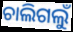
ଚାଲିଗଲୁଁ